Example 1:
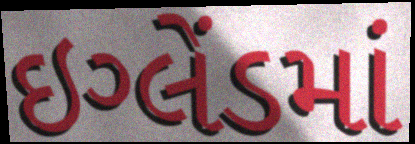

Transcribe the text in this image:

ઇગ્લેંડમાં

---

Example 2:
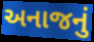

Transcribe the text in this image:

અનાજનું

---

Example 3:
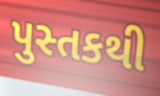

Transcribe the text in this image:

પુસ્તકથી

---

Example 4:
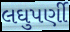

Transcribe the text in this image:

લઘુપર્ણી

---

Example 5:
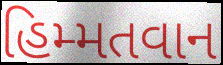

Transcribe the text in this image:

હિમ્મતવાન